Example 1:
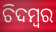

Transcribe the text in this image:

ଚିଦମ୍ବର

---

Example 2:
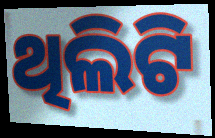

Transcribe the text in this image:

ଥିଲିଟି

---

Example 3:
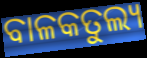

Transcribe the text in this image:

ବାଳକତୁଲ୍ୟ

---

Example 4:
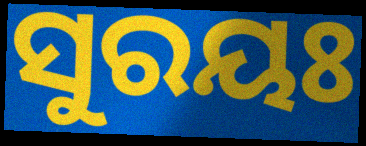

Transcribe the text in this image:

ସୁରୟଃ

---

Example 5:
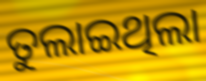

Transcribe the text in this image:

ତୁଲାଇଥିଲା